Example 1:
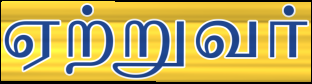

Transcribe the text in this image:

ஏற்றுவர்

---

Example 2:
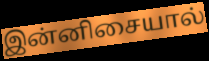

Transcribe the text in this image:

இன்னிசையால்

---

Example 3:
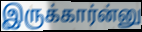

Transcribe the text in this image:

இருக்கார்ன்னு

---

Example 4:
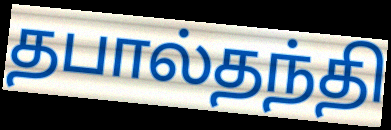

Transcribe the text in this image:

தபால்தந்தி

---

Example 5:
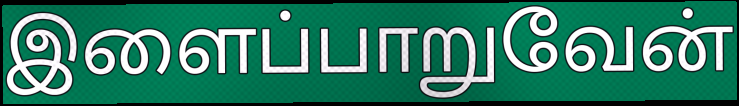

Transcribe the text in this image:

இளைப்பாறுவேன்